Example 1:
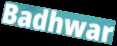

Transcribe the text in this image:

Badhwar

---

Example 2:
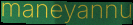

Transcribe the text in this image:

maneyannu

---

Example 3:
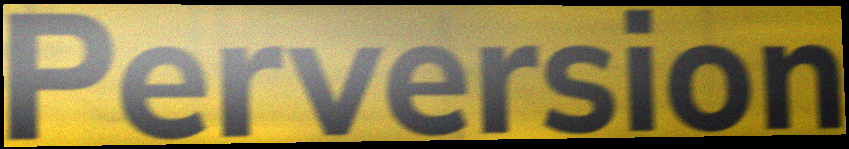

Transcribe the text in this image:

Perversion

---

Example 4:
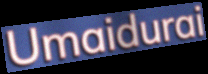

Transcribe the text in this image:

Umaidurai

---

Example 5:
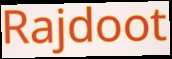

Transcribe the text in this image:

Rajdoot